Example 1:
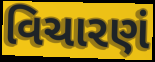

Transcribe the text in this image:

વિચારણં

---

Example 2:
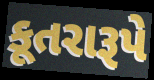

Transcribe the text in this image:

કૂતરારૂપે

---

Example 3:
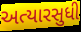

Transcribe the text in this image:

અત્યારસુધી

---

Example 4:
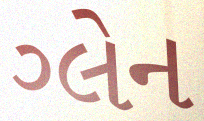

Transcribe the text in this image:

ગ્લેન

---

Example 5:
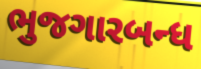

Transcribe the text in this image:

ભુજગારબન્ધ